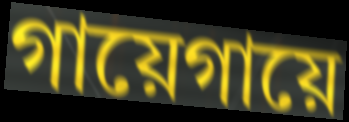
গায়েগায়ে